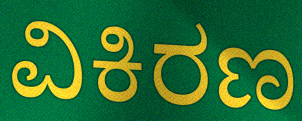
ವಿಕಿರಣ